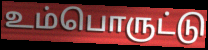
உம்பொருட்டு